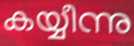
കയ്യീന്നു